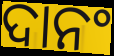
ଦାନଂ